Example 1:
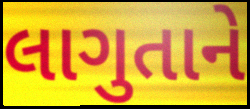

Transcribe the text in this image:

લાગુતાને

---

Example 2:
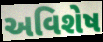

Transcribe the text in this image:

અવિશેષ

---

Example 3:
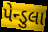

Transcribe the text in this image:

પેન્ડુલા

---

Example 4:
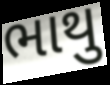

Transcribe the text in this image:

ભાથુ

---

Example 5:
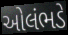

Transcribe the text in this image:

ઓલંભડે